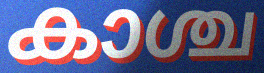
കാശ്ച